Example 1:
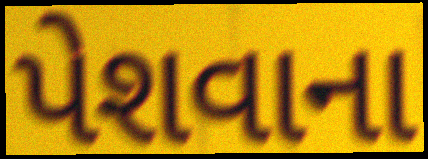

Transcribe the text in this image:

પેશવાના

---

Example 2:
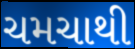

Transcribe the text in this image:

ચમચાથી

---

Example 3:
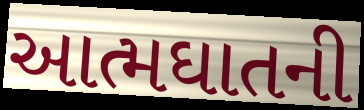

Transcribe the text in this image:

આત્મઘાતની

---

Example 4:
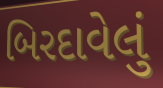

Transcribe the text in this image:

બિરદાવેલું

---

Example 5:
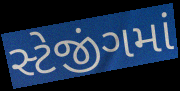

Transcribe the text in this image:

સ્ટેજીંગમાં